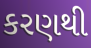
કરણથી